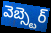
వెబ్స్టెర్